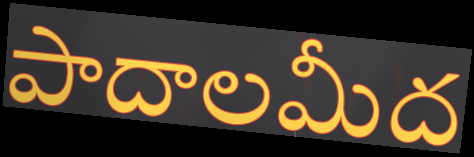
పాదాలమీద